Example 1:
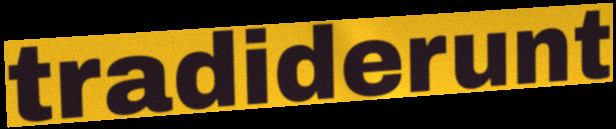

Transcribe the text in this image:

tradiderunt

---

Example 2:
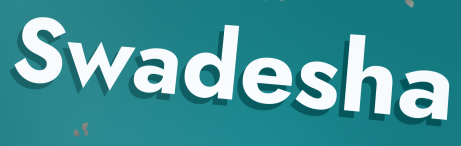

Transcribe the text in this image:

Swadesha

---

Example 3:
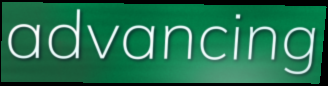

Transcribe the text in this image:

advancing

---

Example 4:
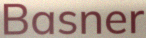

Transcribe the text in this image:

Basner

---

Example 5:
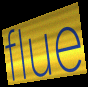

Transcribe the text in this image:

flue